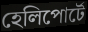
হেলিপোর্টে